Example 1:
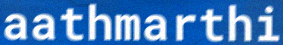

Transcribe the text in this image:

aathmarthi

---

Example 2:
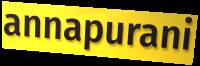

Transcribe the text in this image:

annapurani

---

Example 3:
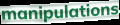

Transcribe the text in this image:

manipulations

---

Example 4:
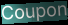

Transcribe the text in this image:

Coupon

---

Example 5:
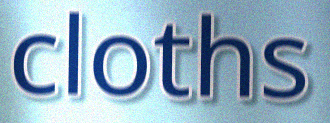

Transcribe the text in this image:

cloths